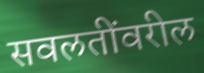
सवलतींवरील